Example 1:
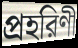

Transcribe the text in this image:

প্রহরিণী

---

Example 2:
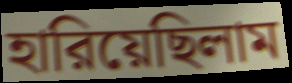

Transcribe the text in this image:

হারিয়েছিলাম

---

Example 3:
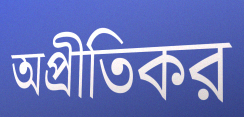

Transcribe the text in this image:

অপ্রীতিকর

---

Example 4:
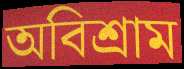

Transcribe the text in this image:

অবিশ্রাম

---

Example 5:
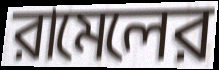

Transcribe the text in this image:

রামেলের